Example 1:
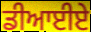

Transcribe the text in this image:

ਡੀਆਈਏ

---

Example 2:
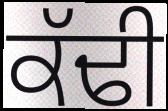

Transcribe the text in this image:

ਕੱਢੀ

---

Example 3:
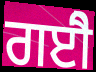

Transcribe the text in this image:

ਗਈੈ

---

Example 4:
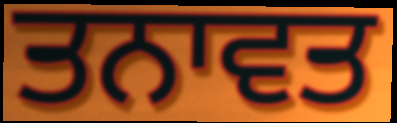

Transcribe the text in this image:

ਤਨਾਵਤ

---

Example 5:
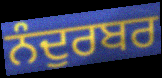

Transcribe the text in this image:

ਨੰਦੁਰਬਰ